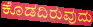
ಕೊಡದಿರುವುದು